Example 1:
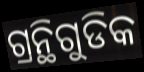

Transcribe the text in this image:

ଗ୍ରନ୍ଥିଗୁଡିକ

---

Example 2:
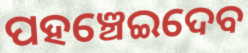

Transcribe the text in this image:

ପହଞ୍ଚେଇଦେବ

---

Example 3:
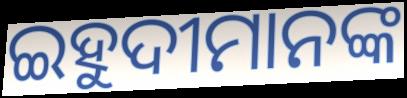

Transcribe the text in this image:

ଇହୁଦୀମାନଙ୍କ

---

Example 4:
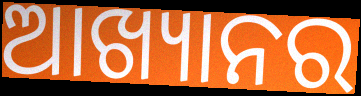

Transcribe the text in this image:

ଆଖ୍ୟାନର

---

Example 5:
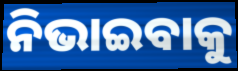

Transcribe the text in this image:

ନିଭାଇବାକୁ